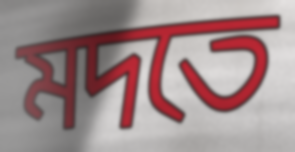
মদতে